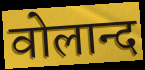
वोलान्द